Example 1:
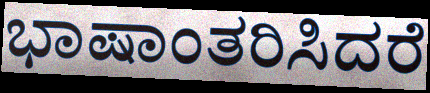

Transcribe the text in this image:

ಭಾಷಾಂತರಿಸಿದರೆ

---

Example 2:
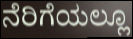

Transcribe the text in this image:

ನೆರಿಗೆಯಲ್ಲೂ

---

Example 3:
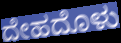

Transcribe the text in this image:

ದೇಹದೊಳು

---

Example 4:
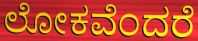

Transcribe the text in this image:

ಲೋಕವೆಂದರೆ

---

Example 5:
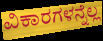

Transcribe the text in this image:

ವಿಕಾರಗಳನ್ನೆಲ್ಲ